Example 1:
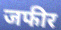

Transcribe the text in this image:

जफीर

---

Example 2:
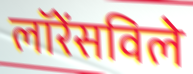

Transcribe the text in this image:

लॉरेंसविले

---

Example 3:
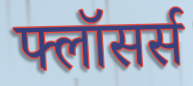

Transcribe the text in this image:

फ्लॉसर्स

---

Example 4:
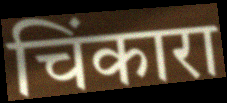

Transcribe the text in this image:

चिंकारा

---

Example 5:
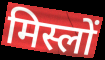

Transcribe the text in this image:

मिस्लों